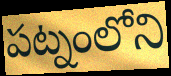
పట్నంలోని